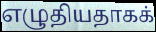
எழுதியதாகக்